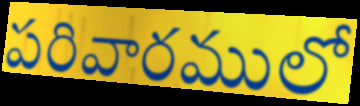
పరివారములో